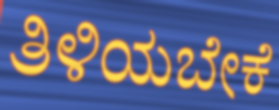
ತಿಳಿಯಬೇಕೆ